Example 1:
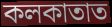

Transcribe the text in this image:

কলকাতাত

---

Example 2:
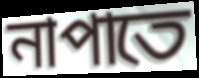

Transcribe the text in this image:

নাপাতে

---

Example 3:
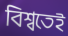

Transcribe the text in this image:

বিশ্বতেই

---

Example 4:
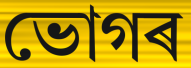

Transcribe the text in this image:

ভোগৰ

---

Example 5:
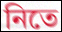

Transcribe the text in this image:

নিতে